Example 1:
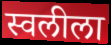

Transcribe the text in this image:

स्वलीला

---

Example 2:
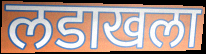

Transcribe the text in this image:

लडाखला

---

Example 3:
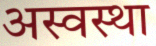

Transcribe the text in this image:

अस्वस्था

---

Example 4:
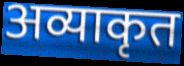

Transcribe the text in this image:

अव्याकृत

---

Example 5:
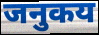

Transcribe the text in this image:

जनुकय